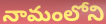
నామంలోని